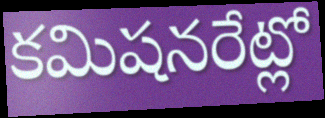
కమిషనరేట్లో